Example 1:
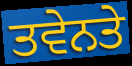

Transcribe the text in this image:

ਤਵੇਨਤੇ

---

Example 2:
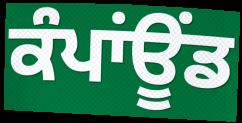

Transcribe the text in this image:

ਕੰਪਾਂਊਂਡ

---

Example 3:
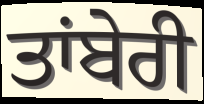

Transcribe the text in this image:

ਤਾਂਬੇਰੀ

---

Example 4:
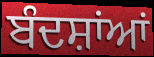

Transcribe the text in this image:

ਬੰਦਸ਼ਾਂਆਂ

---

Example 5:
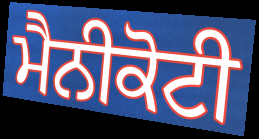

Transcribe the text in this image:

ਮੈਨੀਕੋਟੀ